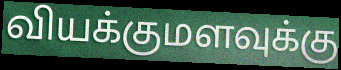
வியக்குமளவுக்கு